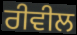
ਰੀਵੀਲ